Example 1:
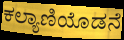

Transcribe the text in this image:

ಕಲ್ಯಾಣಿಯೊಡನೆ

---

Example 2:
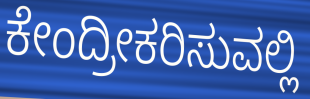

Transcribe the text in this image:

ಕೇಂದ್ರೀಕರಿಸುವಲ್ಲಿ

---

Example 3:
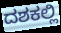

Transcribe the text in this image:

ದಶಕಲ್ಲಿ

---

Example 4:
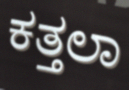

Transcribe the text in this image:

ಕತ್ತಲಾ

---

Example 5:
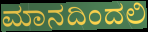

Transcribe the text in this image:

ಮಾನದಿಂದಲಿ